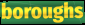
boroughs